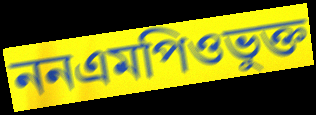
ননএমপিওভুক্ত